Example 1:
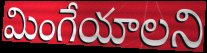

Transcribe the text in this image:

మింగేయాలని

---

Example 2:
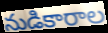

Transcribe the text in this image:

నుడికారాల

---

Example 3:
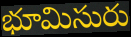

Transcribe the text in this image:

భూమిసురు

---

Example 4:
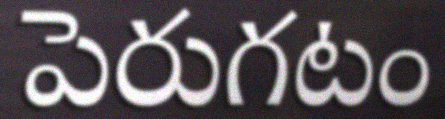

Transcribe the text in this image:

పెరుగటం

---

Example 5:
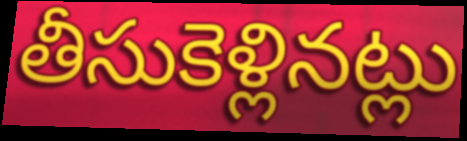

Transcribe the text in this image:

తీసుకెళ్లినట్లు